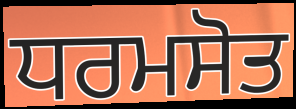
ਧਰਮਸੋਤ